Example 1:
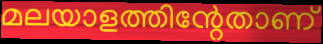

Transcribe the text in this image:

മലയാളത്തിന്റേതാണ്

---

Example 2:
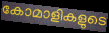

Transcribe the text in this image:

കോമാളികളുടെ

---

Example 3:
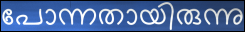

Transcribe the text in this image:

പോന്നതായിരുന്നു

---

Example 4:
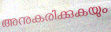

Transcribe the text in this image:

അനുകരിക്കുകയും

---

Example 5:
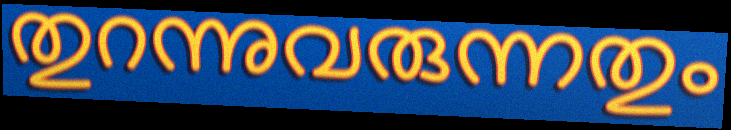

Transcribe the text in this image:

തുറന്നുവരുന്നതും